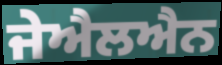
ਜੇਐਲਐਨ